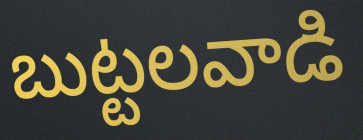
బుట్టలవాడి